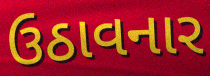
ઉઠાવનાર